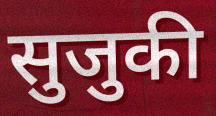
सुजुकी